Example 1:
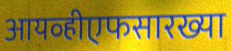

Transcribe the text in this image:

आयव्हीएफसारख्या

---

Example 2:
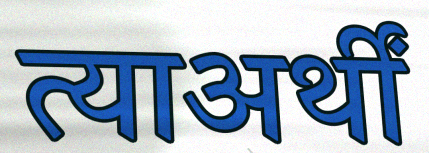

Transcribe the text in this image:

त्याअर्थीं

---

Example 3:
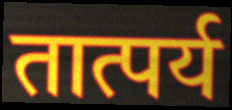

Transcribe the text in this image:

तात्पर्य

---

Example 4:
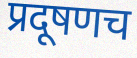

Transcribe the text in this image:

प्रदूषणच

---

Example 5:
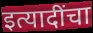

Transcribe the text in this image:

इत्यादींचा